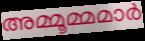
അമ്മൂമ്മമാർ